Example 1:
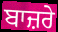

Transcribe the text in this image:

ਬਾਜ਼ਰੇ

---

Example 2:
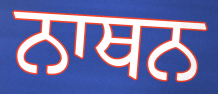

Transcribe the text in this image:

ਨਾਥਨ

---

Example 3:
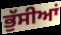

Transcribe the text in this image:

ਭੁੱਸੀਆਂ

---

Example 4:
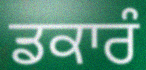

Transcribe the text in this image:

ਡਕਾਰੰ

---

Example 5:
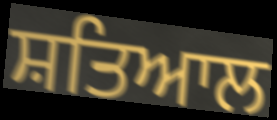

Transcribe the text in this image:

ਸ਼ਤਿਆਲ